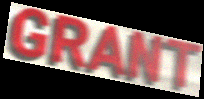
GRANT